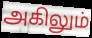
அகிலும்